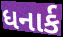
ધનાર્ક